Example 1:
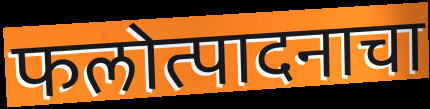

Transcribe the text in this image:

फलोत्पादनाचा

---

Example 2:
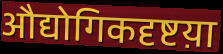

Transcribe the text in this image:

औद्योगिकदृष्टय़ा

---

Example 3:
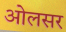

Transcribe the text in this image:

ओलसर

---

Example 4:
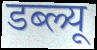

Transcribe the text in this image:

डब्ल्यू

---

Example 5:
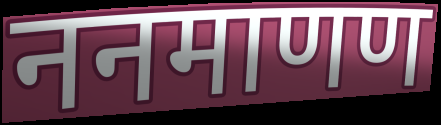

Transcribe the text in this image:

ननमाणण